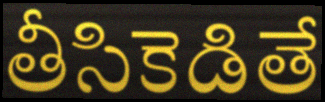
తీసికెడితే